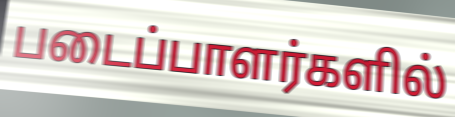
படைப்பாளர்களில்